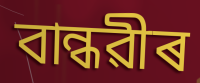
বান্ধৱীৰ